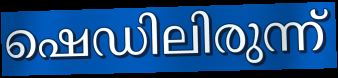
ഷെഡിലിരുന്ന്